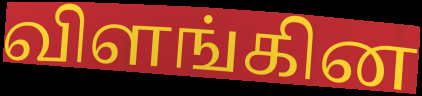
விளங்கின